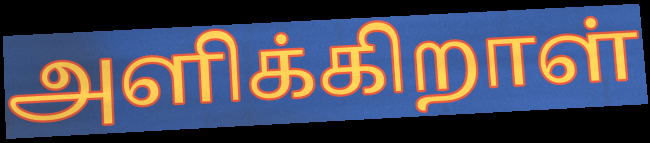
அளிக்கிறாள்